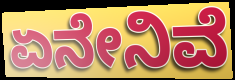
ಏನೇನಿವೆ